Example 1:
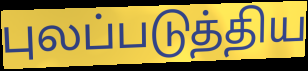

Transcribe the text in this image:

புலப்படுத்திய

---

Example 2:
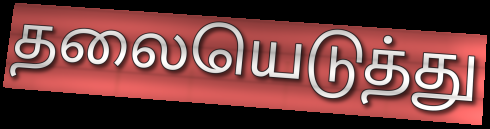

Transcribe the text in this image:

தலையெடுத்து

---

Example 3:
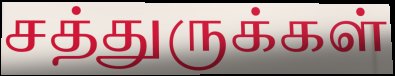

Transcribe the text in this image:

சத்துருக்கள்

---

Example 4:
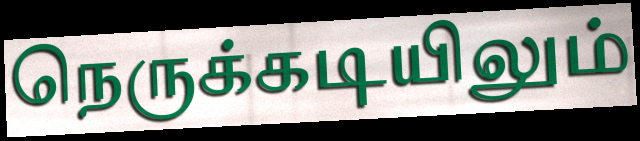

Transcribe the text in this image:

நெருக்கடியிலும்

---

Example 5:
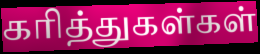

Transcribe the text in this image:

கரித்துகள்கள்